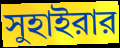
সুহাইরার